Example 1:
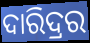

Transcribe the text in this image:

ଦାରିଦ୍ରର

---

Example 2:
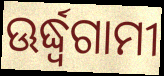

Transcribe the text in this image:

ଊର୍ଦ୍ଧ୍ୱଗାମୀ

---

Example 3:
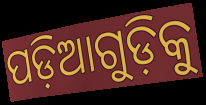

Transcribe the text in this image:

ପଡ଼ିଆଗୁଡ଼ିକୁ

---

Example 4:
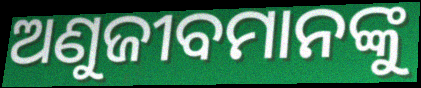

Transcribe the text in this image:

ଅଣୁଜୀବମାନଙ୍କୁ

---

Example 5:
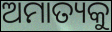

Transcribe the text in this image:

ଅମାତ୍ୟକୁ